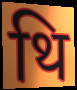
थि